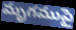
మృగముపై